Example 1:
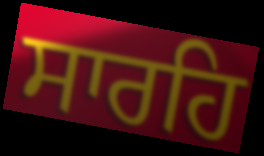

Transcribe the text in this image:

ਸਾਰਹਿ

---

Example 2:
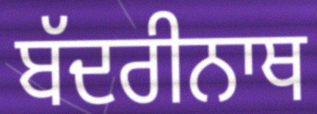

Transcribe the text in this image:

ਬੱਦਰੀਨਾਥ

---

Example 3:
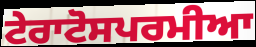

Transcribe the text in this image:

ਟੇਰਾਟੋਸਪਰਮੀਆ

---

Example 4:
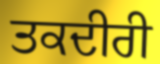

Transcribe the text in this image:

ਤਕਦੀਰੀ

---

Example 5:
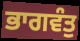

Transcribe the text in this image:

ਭਾਗਵੰਤੁ